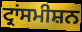
ਟ੍ਰਾਂਸਮੀਸ਼ਨ